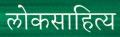
लोकसाहित्य